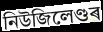
নিউজিলেণ্ডৰ